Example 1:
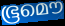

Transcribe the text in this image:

ഭൂമൌ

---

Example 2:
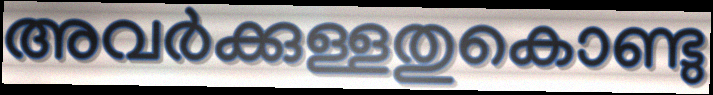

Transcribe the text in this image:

അവർക്കുള്ളതുകൊണ്ടു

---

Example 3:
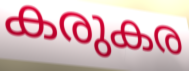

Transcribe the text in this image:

കരുകര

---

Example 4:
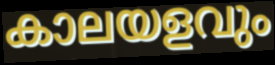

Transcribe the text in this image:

കാലയളവും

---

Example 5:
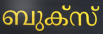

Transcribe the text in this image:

ബുക്സ്